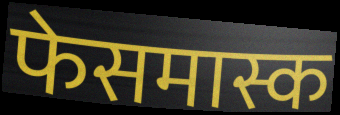
फेसमास्क